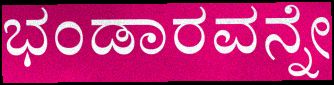
ಭಂಡಾರವನ್ನೇ